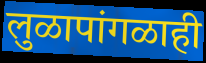
लुळापांगळाही